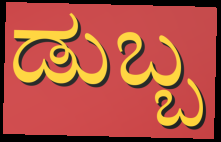
ಡುಬ್ಬ